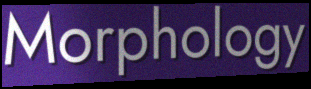
Morphology